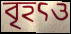
বৃহৎও